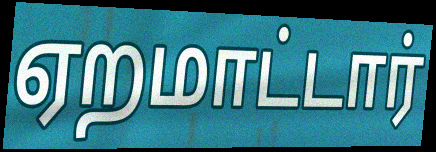
ஏறமாட்டார்